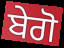
ਬੇਗੋ